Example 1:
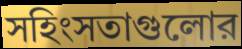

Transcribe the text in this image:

সহিংসতাগুলোর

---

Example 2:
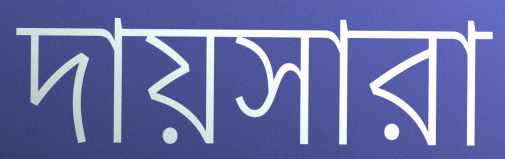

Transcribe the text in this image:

দায়সারা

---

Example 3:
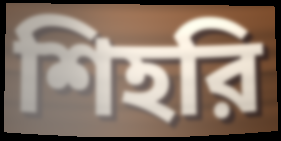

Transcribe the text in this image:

শিহরি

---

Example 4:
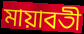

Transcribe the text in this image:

মায়াবতী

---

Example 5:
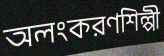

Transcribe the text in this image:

অলংকরণশিল্পী